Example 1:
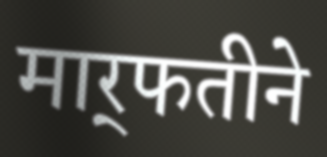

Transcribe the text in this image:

मार्फतीने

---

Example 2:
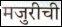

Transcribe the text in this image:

मजुरीची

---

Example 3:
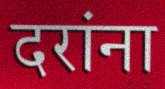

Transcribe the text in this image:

दरांना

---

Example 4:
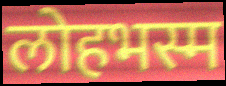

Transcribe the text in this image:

लोहभस्म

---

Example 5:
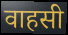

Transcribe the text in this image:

वाहसी